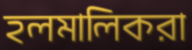
হলমালিকরা